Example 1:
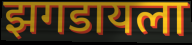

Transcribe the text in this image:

झगडायला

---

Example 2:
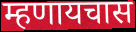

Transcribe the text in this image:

म्हणायचास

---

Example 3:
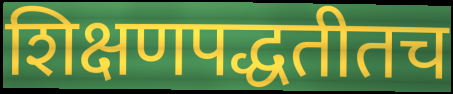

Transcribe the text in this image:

शिक्षणपद्धतीतच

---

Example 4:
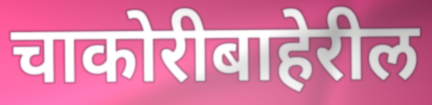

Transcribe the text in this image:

चाकोरीबाहेरील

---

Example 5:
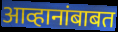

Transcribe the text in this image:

आव्हानांबाबत